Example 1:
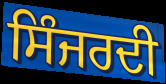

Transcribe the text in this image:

ਸਿੰਜਰਦੀ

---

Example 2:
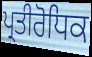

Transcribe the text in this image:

ਪ੍ਰਤੀਰੋਧਿਕ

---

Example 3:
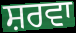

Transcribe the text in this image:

ਸ਼ਰਵਾ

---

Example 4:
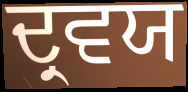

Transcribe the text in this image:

ਦ੍ਰਵਯ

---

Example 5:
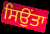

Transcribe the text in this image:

ਸਿਉਂਤਾ